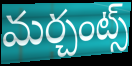
మర్చంట్స్